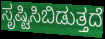
ಸೃಷ್ಟಿಸಿಬಿಡುತ್ತದೆ